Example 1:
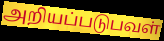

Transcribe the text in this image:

அறியப்படுபவள்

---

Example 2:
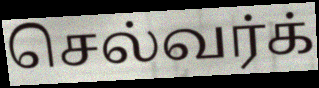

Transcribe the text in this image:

செல்வர்க்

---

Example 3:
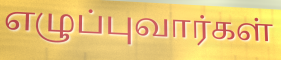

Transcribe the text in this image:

எழுப்புவார்கள்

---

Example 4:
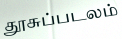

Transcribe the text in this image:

தூசுப்படலம்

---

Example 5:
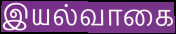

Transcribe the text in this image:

இயல்வாகை